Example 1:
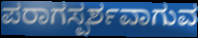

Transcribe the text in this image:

ಪರಾಗಸ್ಪರ್ಶವಾಗುವ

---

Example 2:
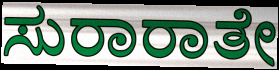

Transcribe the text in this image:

ಸುರಾರಾತೇ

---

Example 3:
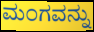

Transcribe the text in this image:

ಮಂಗವನ್ನು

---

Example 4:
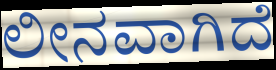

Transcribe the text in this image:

ಲೀನವಾಗಿದೆ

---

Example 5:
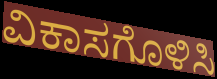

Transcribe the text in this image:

ವಿಕಾಸಗೊಳಿಸಿ